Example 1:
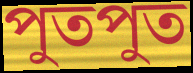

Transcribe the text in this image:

পুতপুত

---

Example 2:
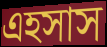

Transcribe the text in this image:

এহসাস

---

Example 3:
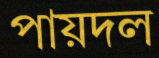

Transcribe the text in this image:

পায়দল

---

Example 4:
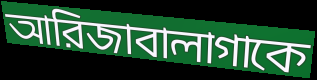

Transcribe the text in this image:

আরিজাবালাগাকে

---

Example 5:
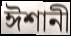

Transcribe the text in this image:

ঈশানী